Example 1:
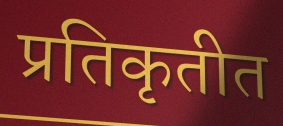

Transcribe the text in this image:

प्रतिकृतीत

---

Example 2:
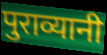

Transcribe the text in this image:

पुराव्यानी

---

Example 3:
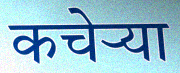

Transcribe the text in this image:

कचेऱ्या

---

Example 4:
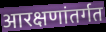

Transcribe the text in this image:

आरक्षणांतर्गत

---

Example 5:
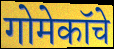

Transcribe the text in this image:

गोमेकॉचे